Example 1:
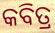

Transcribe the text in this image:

କବିତ୍ର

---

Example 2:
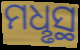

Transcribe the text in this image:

ମଧୢସ୍ଥ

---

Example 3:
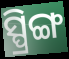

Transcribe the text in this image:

ସ୍ପ୍ରିଙ୍ଗ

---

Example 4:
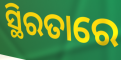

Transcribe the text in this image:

ସ୍ଥିରତାରେ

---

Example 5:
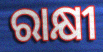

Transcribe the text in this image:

ରାକ୍ଷୀ